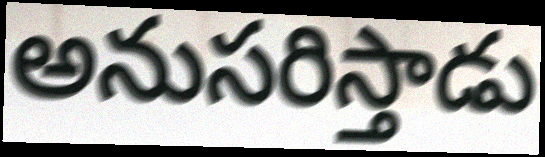
అనుసరిస్తాడు